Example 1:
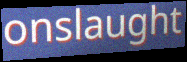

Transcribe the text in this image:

onslaught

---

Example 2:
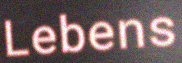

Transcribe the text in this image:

Lebens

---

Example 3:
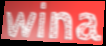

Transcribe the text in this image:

wina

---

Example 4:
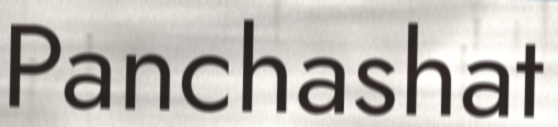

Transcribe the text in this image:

Panchashat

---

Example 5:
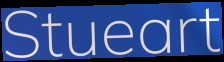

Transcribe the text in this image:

Stueart